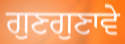
ਗੁਣਗੁਣਾਵੇ